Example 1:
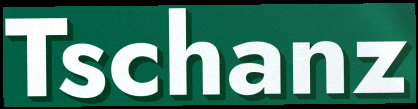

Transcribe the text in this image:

Tschanz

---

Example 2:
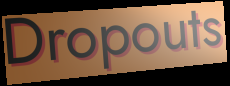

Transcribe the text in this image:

Dropouts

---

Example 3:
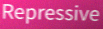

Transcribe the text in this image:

Repressive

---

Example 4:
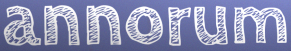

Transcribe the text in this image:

annorum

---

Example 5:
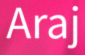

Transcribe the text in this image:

Araj